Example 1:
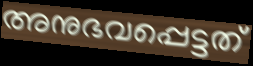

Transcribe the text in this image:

അനുഭവപ്പെട്ടത്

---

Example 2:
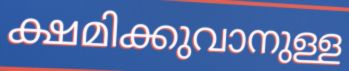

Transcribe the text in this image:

ക്ഷമിക്കുവാനുള്ള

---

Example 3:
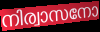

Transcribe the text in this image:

നിര്വാസനോ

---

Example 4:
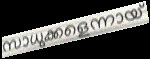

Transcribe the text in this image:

സാധുക്കളെന്നായ്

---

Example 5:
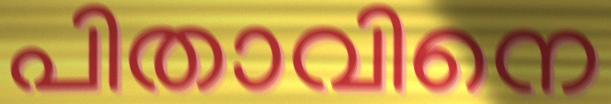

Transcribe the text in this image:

പിതാവിനെ